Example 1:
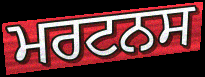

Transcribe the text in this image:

ਮਰਟਨਸ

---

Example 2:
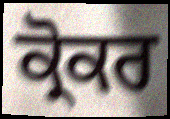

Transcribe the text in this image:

ਕ੍ਰੋਕਰ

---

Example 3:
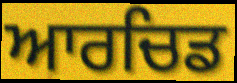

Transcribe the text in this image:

ਆਰਚਿਡ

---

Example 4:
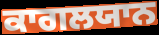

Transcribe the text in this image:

ਕਾਗਲਯਾਨ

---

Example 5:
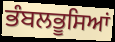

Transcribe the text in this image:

ਭੰਬਲਭੂਸਿਆਂ